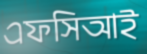
এফসিআই